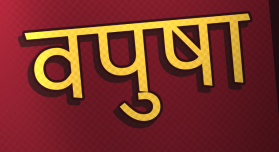
वपुषा